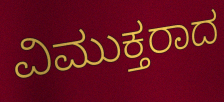
ವಿಮುಕ್ತರಾದ